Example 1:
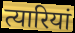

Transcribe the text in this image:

त्यारियां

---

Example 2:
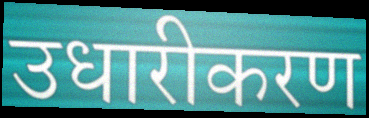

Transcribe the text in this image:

उधारीकरण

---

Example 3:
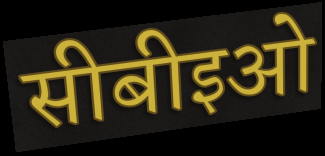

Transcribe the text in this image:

सीबीइओ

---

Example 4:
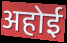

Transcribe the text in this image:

अहोई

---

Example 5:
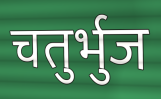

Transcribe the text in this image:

चतुर्भुज